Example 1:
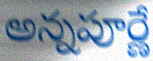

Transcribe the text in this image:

అన్నపూర్ణే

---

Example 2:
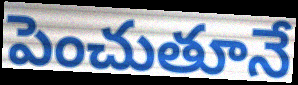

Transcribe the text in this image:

పెంచుతూనే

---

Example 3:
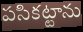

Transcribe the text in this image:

పసికట్టాను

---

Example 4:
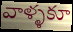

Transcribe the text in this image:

వాళ్ళకూ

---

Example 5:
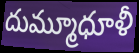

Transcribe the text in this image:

దుమ్మూధూళీ